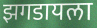
झगडायला